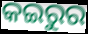
କଇରୁର